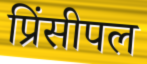
प्रिंसीपल